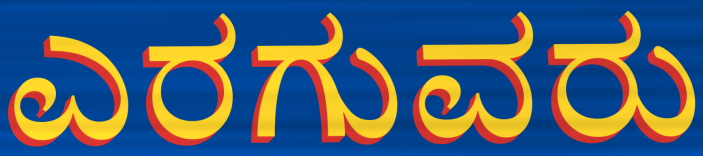
ಎರಗುವರು